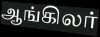
ஆங்கிலர்